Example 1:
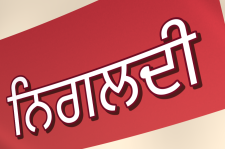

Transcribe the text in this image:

ਨਿਗਲਦੀ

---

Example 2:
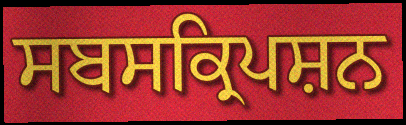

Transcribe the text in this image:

ਸਬਸਕ੍ਰਿਪਸ਼ਨ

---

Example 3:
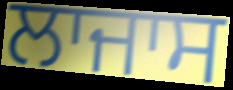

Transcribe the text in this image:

ਲਾਜਾਸ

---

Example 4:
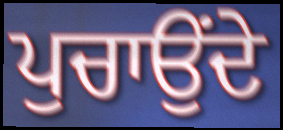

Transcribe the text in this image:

ਪੁਚਾਉਂਦੇ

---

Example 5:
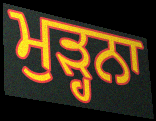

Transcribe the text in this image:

ਮੁੜ੍ਹਨਾ